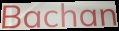
Bachan